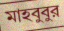
মাহবুবুর